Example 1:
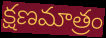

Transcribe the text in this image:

క్షణమాత్రం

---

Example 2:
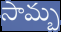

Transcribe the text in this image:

సామ్బ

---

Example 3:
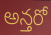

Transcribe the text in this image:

అన్తరో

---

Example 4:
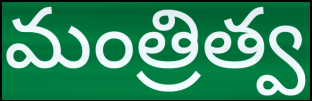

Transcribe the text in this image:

మంత్రిత్వ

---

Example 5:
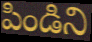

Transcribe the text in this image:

పిండిని